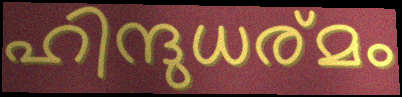
ഹിന്ദുധര്മം